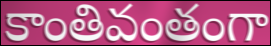
కాంతివంతంగా